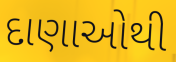
દાણાઓથી